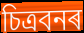
চিত্ৰবনৰ